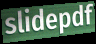
slidepdf